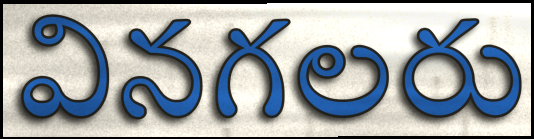
వినగలరు